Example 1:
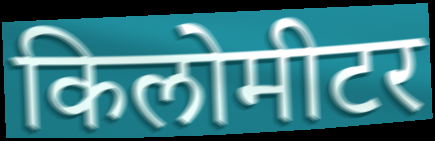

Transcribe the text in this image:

किलोमीटर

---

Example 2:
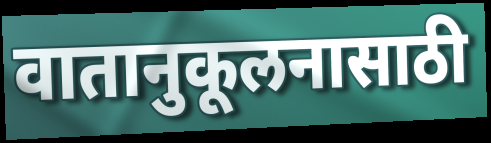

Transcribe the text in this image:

वातानुकूलनासाठी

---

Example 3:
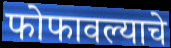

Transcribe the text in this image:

फोफावल्याचे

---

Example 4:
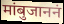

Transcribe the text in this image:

मांबुजाननं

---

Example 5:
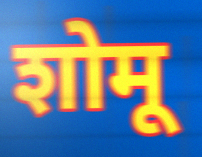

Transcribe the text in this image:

शोमू